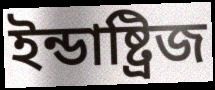
ইন্ডাষ্ট্রিজ